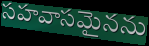
సహవాసమైనను